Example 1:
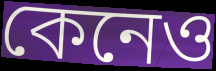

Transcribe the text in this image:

কেনেও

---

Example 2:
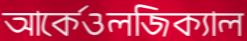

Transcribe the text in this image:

আর্কেওলজিক্যাল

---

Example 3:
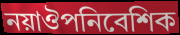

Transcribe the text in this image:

নয়াঔপনিবেশিক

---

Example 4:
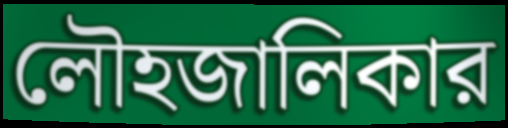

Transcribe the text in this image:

লৌহজালিকার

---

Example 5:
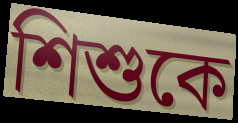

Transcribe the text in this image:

শিশুকে